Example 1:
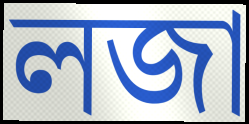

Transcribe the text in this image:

লজা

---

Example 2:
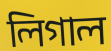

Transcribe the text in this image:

লিগাল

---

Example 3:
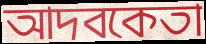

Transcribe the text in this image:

আদবকেতা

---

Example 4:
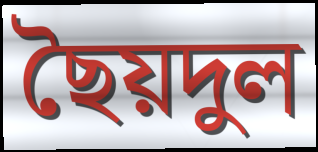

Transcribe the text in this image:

ছৈয়দুল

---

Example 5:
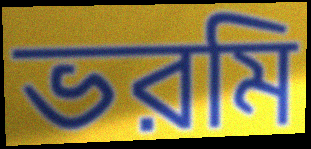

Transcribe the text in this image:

ভরমি